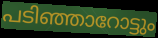
പടിഞ്ഞാറോട്ടും